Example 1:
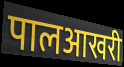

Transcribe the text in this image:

पालआखरी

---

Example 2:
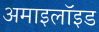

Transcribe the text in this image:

अमाइलॉइड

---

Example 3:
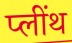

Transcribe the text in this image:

प्लींथ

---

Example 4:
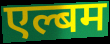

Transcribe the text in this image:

एल्बम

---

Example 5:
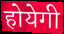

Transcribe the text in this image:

होयेगी